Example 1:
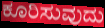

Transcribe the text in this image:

ಕೂರಿಸುವುದು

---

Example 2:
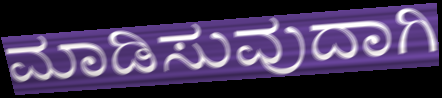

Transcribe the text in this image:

ಮಾಡಿಸುವುದಾಗಿ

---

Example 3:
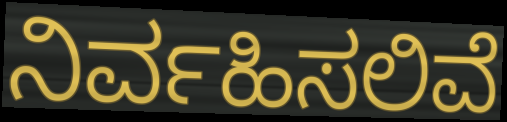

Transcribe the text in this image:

ನಿರ್ವಹಿಸಲಿವೆ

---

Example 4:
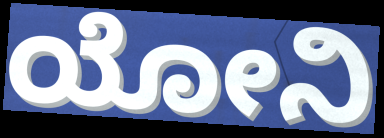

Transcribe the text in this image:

ಯೋನಿ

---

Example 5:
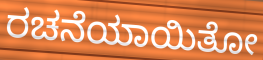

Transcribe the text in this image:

ರಚನೆಯಾಯಿತೋ